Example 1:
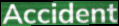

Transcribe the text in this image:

Accident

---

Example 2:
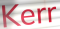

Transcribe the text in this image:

Kerr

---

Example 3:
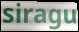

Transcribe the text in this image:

siragu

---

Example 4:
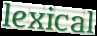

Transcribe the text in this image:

lexical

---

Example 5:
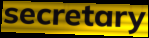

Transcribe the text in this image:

secretary